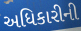
અધિકારીની